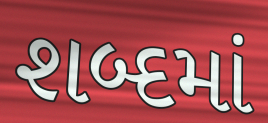
શબ્દમાં